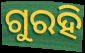
ଗୁରହି